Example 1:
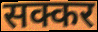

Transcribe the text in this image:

सक्कर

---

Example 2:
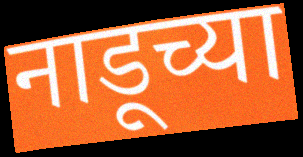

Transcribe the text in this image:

नाडूच्या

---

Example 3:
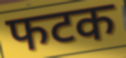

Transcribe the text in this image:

फटक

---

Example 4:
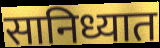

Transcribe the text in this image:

सानिध्यात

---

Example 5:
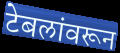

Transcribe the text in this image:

टेबलांवरून